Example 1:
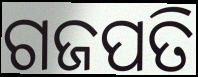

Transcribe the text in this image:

ଗଜପତି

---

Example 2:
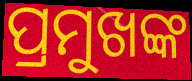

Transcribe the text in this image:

ପ୍ରମୁଖଙ୍କ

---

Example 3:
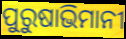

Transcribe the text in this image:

ପୁରୁଷାଭିମାନୀ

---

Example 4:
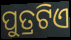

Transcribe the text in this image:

ପୁତ୍ରଟିଏ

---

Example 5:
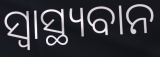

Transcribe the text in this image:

ସ୍ୱାସ୍ଥ୍ୟବାନ